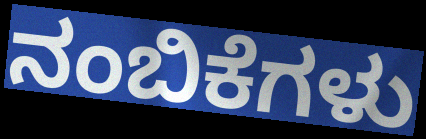
ನಂಬಿಕೆಗಳು